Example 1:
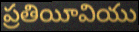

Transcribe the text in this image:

ప్రతియీవియు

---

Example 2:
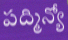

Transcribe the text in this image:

పద్మిన్యో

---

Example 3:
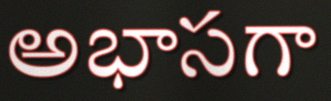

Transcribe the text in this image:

అభాసగా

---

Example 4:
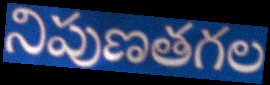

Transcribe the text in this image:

నిపుణతగల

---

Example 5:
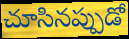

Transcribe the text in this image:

చూసినప్పుడో